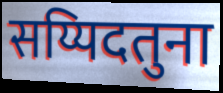
सय्यिदतुना